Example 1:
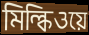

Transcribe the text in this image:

মিল্কিওয়ে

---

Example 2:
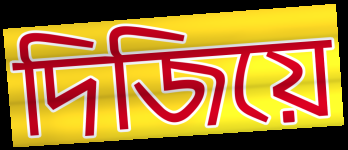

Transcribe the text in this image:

দিজিয়ে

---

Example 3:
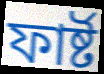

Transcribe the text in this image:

ফার্ষ্ট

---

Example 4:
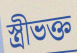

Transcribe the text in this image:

স্ত্রীভক্ত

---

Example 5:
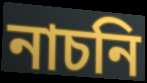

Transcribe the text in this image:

নাচনি